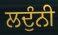
ਲਦੁੰਨੀ